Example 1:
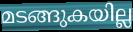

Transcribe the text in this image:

മടങ്ങുകയില്ല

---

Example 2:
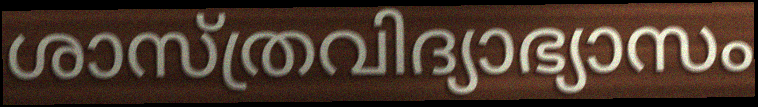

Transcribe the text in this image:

ശാസ്ത്രവിദ്യാഭ്യാസം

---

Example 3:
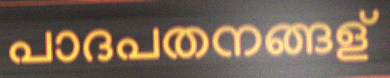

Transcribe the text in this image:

പാദപതനങ്ങള്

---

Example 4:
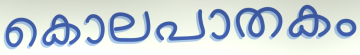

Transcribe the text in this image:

കൊലപാതകം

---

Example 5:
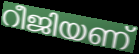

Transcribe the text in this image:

റീജിയണ്